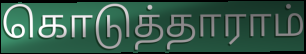
கொடுத்தாராம்